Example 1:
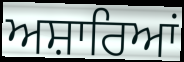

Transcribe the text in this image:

ਅਸ਼ਾਰਿਆਂ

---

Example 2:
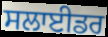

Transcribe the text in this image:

ਸਲਾਈਡਰ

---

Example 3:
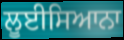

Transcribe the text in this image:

ਲੂਈਸਿਆਨਾ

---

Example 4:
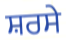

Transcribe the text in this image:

ਸ਼ਰਸੇ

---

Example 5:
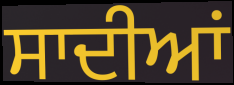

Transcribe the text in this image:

ਸਾਦੀਆਂ